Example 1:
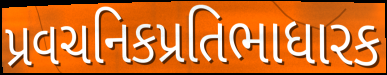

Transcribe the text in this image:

પ્રવચનિકપ્રતિભાધારક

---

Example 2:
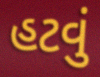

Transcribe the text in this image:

હટવું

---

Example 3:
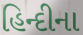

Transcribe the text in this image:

હિન્દીના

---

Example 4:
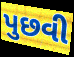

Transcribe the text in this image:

પુછવી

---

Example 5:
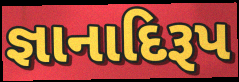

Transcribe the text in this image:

જ્ઞાનાદિરૂપ